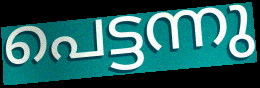
പെട്ടന്നു